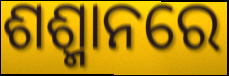
ଶଶ୍ମାନରେ